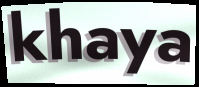
khaya